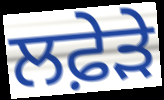
ਲਫ਼ੇੜੇ